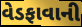
વેડફાવાની